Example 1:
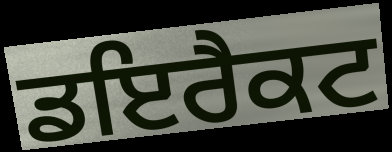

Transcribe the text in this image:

ਡਇਰੈਕਟ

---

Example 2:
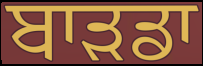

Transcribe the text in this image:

ਬਾੜਡਾ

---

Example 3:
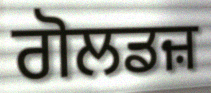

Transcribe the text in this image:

ਗੋਲਡਜ਼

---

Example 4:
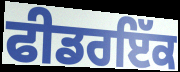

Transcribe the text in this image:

ਫੀਡਰਇੱਕ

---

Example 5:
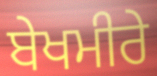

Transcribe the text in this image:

ਬੇਖਮੀਰੇ